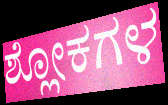
ಶ್ಲೋಕಗಳ